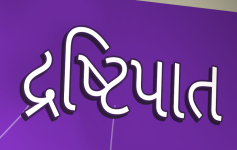
દ્રષ્ટિપાત